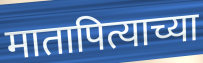
मातापित्याच्या